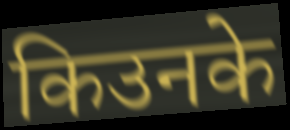
किउनके